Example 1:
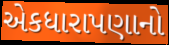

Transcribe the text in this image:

એકધારાપણાનો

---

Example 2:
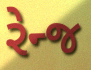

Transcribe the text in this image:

રેન્જ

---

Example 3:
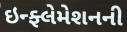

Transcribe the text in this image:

ઇન્ફ્લેમેશનની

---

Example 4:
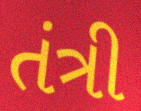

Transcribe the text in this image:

તંત્રી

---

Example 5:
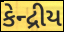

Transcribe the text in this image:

કેન્દ્રીય